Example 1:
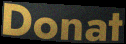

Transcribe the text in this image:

Donat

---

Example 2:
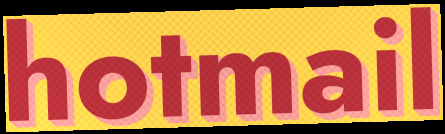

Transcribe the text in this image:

hotmail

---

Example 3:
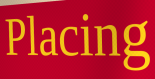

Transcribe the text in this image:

Placing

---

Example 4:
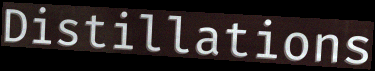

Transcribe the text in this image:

Distillations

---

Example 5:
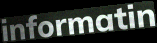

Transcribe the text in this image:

informatin